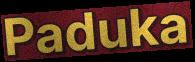
Paduka